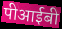
पीआईबी